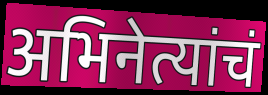
अभिनेत्यांचं